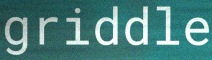
griddle